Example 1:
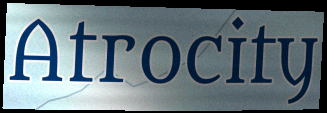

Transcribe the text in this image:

Atrocity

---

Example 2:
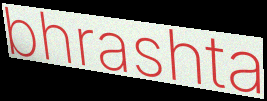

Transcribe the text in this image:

bhrashta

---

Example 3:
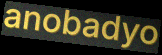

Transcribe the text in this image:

anobadyo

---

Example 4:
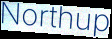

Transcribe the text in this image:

Northup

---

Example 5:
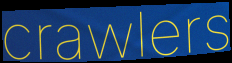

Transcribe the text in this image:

crawlers